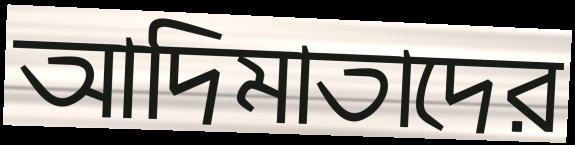
আদিমাতাদের